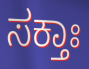
ಸಕ್ತಾಃ